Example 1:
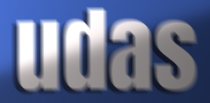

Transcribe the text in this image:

udas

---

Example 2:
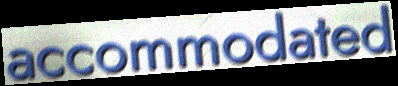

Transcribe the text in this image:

accommodated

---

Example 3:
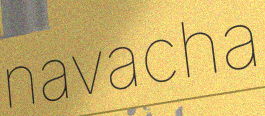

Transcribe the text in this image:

navacha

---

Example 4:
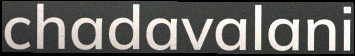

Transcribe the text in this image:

chadavalani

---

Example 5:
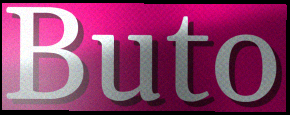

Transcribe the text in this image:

Buto